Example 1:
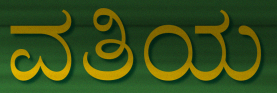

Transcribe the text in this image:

ವತಿಯ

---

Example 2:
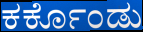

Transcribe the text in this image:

ಕರ್ಕೊಂಡು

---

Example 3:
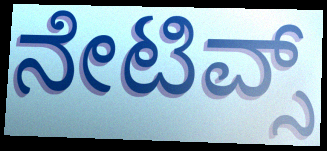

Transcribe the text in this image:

ನೇಟಿವ್ಸ್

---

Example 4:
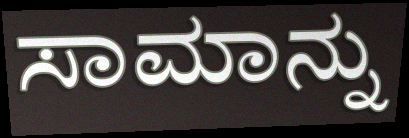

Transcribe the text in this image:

ಸಾಮಾನ್ನು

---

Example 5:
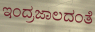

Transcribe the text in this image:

ಇಂದ್ರಜಾಲದಂತೆ